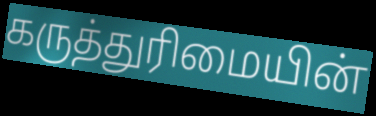
கருத்துரிமையின்